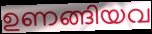
ഉണങ്ങിയവ